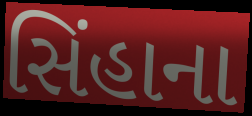
સિંહાના